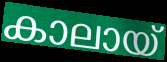
കാലായ്